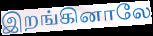
இறங்கினாலே